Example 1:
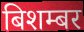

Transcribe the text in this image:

बिशम्बर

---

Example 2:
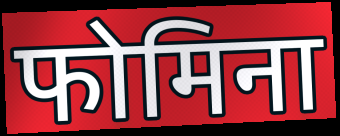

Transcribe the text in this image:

फोमिना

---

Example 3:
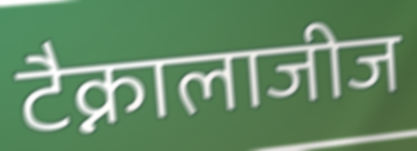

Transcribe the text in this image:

टैक्नालाजीज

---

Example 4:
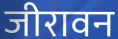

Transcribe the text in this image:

जीरावन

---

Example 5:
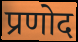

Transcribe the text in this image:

प्रणोद